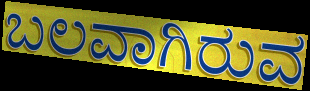
ಬಲವಾಗಿರುವ